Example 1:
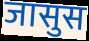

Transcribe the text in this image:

जासुस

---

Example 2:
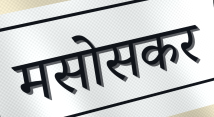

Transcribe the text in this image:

मसोसकर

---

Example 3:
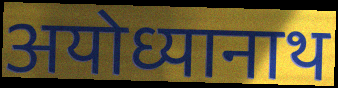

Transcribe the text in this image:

अयोध्यानाथ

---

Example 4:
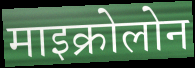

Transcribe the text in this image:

माइक्रोलोन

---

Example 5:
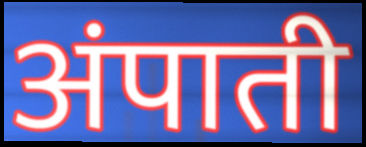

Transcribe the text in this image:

अंपाती